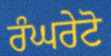
ਰੰਘਰੇਟੋ